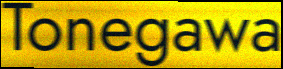
Tonegawa